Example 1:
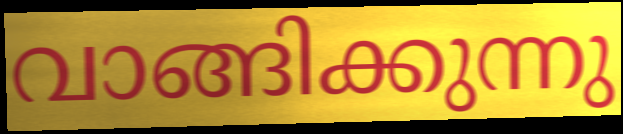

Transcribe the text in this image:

വാങ്ങിക്കുന്നു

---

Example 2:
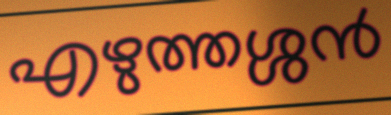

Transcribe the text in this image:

എഴുത്തശ്ശൻ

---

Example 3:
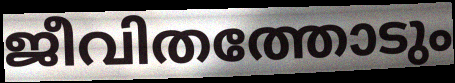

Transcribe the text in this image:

ജീവിതത്തോടും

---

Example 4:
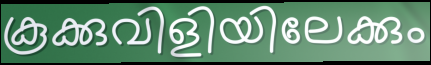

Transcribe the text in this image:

കൂക്കുവിളിയിലേക്കും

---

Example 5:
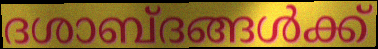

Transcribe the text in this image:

ദശാബ്ദങ്ങൾക്ക്